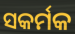
ସକର୍ମକ